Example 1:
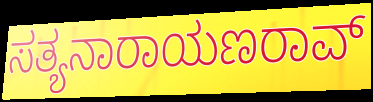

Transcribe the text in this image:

ಸತ್ಯನಾರಾಯಣರಾವ್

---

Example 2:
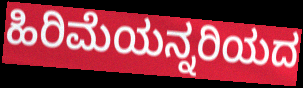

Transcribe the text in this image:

ಹಿರಿಮೆಯನ್ನರಿಯದ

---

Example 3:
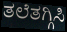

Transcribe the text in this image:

ತಲೆತಗ್ಗಿಸಿ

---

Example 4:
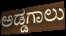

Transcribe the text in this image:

ಅಡ್ಡಗಾಲು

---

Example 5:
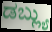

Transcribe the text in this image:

ಡಬ್ಲ್ಯು